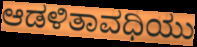
ಆಡಳಿತಾವಧಿಯು